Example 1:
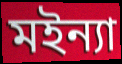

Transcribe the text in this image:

মইন্যা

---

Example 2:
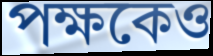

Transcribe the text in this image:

পক্ষকেও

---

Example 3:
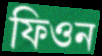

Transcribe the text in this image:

ফিওন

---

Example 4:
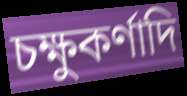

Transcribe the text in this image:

চক্ষুকর্ণাদি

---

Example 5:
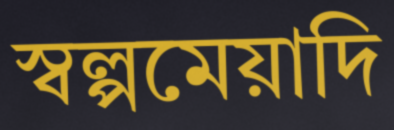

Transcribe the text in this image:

স্বল্পমেয়াদি